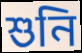
শুনি